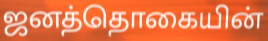
ஜனத்தொகையின்